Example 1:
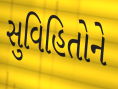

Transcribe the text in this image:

સુવિહિતોને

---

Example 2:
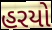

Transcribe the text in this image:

હરયો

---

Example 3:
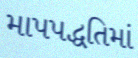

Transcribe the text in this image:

માપપદ્ધતિમાં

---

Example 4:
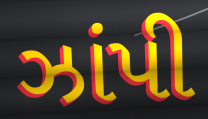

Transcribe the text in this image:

ઝાંપી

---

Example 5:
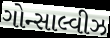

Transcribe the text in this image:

ગોન્સાલ્વીઝ